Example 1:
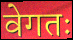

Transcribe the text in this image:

वेगतः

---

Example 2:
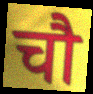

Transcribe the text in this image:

चौ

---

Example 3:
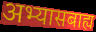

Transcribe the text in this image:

अभ्यासबाह्य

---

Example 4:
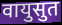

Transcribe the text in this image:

वायुसुत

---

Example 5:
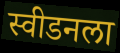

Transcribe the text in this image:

स्वीडनला